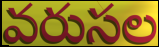
వరుసల